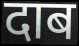
दाब